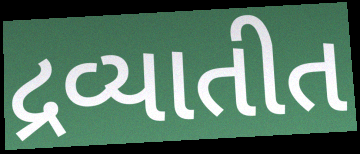
દ્રવ્યાતીત